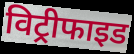
विट्रीफाइड